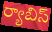
ర్యాబిస్